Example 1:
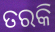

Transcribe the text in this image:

ତରକି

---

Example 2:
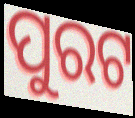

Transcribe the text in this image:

ପୁରଟ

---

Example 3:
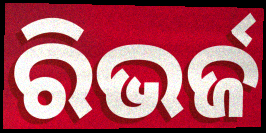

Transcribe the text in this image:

ରିଭର୍ଜ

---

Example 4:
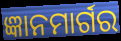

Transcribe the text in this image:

ଜ୍ଞାନମାର୍ଗର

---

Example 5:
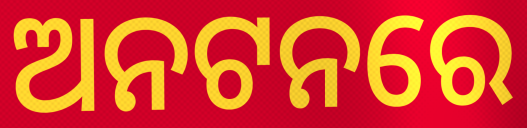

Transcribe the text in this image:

ଅନଟନରେ